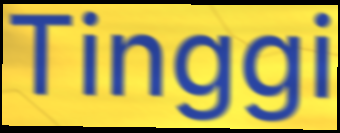
Tinggi